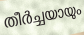
തീർച്ചയായും